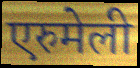
एरुमेली